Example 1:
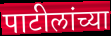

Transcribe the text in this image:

पाटीलांच्या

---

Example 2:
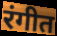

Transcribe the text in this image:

रंगीत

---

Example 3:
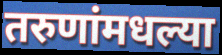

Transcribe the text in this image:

तरुणांमधल्या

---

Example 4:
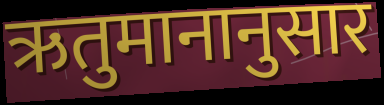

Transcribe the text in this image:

ऋतुमानानुसार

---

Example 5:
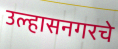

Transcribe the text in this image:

उल्हासनगरचे